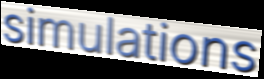
simulations